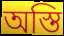
অস্তি